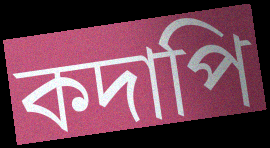
কদাপি